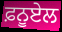
ਫ਼ਨੂਏਲ